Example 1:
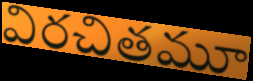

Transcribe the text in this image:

విరచితమూ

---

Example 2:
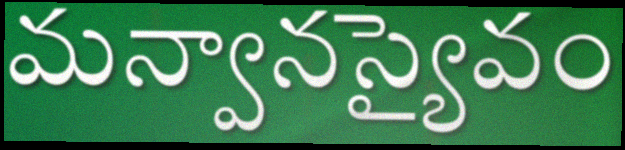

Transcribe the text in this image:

మన్వానస్యైవం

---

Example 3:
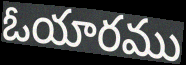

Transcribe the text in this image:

ఓయారము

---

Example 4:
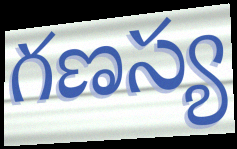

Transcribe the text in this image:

గణస్య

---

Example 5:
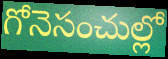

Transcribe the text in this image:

గోనెసంచుల్లో